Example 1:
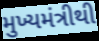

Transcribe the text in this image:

મુખ્યમંત્રીથી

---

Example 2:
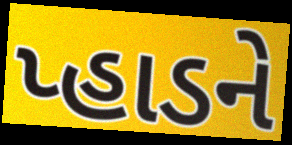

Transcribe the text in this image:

પ્હાડને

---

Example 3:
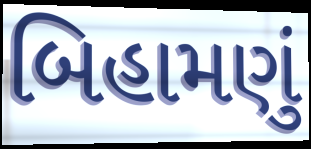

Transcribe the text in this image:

બિહામણું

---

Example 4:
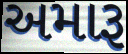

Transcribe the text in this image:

અમારૂ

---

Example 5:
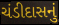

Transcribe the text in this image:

ચંડીદાસનું